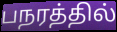
பநரத்தில்